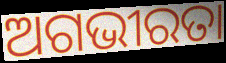
ଅଗଭୀରତା